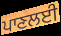
ਪਾਣਲਈ